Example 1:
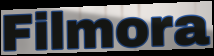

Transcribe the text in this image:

Filmora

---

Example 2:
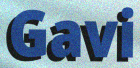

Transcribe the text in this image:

Gavi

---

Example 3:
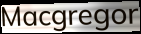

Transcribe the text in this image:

Macgregor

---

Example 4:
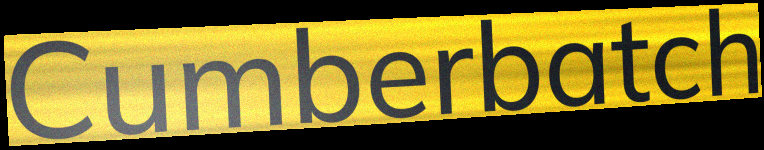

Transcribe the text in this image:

Cumberbatch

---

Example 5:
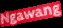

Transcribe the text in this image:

Ngawang